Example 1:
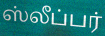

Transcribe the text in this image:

ஸ்லீப்பர்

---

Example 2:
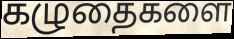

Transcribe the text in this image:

கழுதைகளை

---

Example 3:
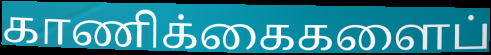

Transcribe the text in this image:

காணிக்கைகளைப்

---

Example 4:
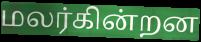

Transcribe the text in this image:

மலர்கின்றன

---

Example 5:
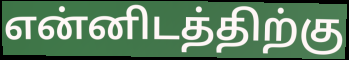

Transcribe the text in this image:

என்னிடத்திற்கு